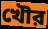
খৌর